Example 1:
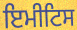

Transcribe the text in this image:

ਇਮੀਟਿਸ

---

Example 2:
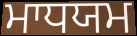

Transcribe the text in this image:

ਮਾਧਯਮ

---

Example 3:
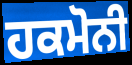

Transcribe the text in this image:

ਹਕਮੋਨੀ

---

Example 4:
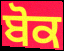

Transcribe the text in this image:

ਬੋਕ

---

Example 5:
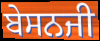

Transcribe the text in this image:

ਬੇਸਨਜੀ